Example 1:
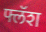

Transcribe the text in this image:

फ्लॅश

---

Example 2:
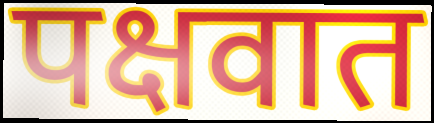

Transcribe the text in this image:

पक्षवात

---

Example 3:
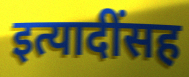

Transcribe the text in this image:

इत्यादींसह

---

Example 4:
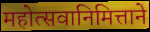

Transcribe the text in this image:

महोत्सवानिमित्ताने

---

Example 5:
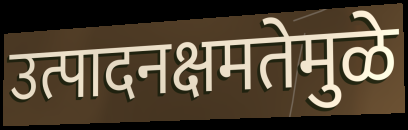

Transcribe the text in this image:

उत्पादनक्षमतेमुळे